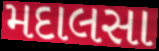
મદાલસા